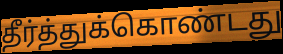
தீர்த்துக்கொண்டது